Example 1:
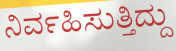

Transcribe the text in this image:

ನಿರ್ವಹಿಸುತ್ತಿದ್ದು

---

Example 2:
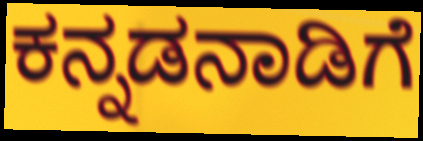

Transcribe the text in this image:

ಕನ್ನಡನಾಡಿಗೆ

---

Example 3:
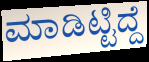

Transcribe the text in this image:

ಮಾಡಿಟ್ಟಿದ್ದೆ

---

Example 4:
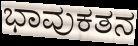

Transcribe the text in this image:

ಭಾವುಕತನ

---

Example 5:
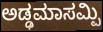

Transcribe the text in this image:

ಅಡ್ಢಮಾಸಮ್ಪಿ